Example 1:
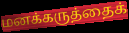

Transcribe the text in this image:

மனக்கருத்தைக்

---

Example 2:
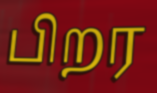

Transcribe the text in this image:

பிறர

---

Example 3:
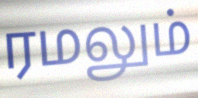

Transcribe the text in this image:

ரமலும்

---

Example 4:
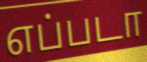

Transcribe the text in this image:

எப்படா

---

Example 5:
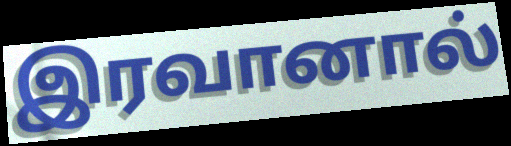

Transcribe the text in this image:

இரவானால்